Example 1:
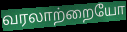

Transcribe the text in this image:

வரலாற்றையோ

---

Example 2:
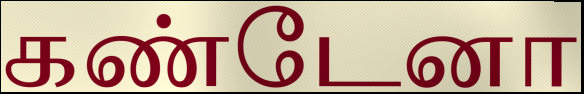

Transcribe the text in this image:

கண்டேனா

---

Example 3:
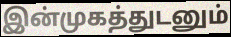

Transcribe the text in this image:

இன்முகத்துடனும்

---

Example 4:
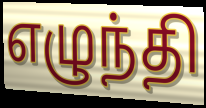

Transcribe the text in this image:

எழுந்தி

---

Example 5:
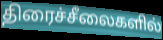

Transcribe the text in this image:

திரைச்சீலைகளில்